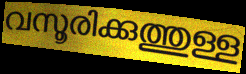
വസൂരിക്കുത്തുള്ള